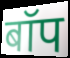
बॉप